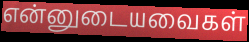
என்னுடையவைகள்